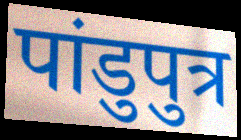
पांडुपुत्र